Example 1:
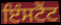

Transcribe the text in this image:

ਇੰਸਟੈਂਟ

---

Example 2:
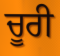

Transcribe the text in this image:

ਚੂਰੀ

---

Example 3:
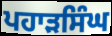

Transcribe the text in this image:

ਪਹਾੜਸਿੰਘ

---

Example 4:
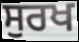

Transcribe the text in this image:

ਸੁਰਖ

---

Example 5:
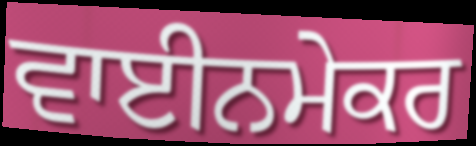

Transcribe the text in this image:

ਵਾਈਨਮੇਕਰ